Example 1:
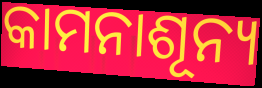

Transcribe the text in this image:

କାମନାଶୂନ୍ୟ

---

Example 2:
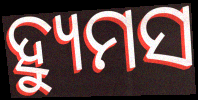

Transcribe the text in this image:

ହ୍ୟୁମସ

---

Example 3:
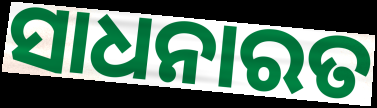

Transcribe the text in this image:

ସାଧନାରତ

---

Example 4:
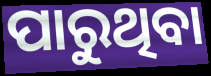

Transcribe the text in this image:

ପାରୁଥିବା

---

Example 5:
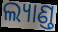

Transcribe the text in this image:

ଲ୍ୟାଣ୍ଡ